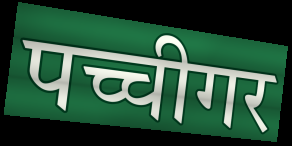
पच्चीगर